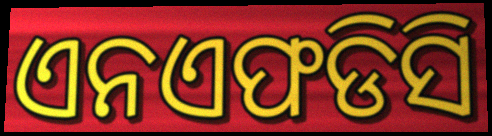
ଏନଏଫଡିସି